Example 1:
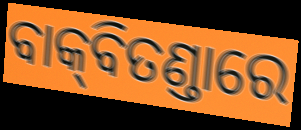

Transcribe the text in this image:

ବାକ୍‌ବିତଣ୍ଡାରେ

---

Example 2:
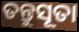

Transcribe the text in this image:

ତନ୍ତୁସୂତା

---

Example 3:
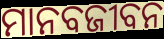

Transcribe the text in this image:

ମାନବଜୀବନ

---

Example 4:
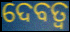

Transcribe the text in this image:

ଦେବତ୍ୱ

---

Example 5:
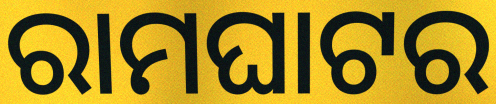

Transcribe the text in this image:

ରାମଘାଟର